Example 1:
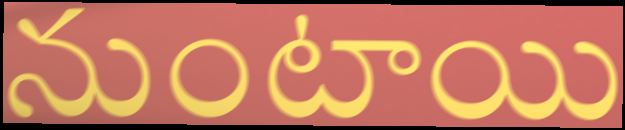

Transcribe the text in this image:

నుంటాయి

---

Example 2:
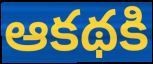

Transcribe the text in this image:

ఆకథకి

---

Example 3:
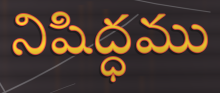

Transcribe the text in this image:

నిషిద్ధము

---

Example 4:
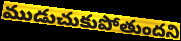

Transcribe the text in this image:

ముడుచుకుపోతుందని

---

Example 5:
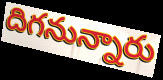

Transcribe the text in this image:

దిగనున్నారు